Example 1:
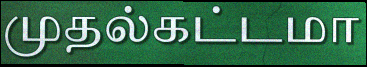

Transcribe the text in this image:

முதல்கட்டமா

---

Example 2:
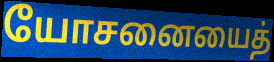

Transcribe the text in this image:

யோசனையைத்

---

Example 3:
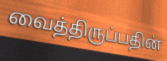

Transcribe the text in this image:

வைத்திருப்பதின்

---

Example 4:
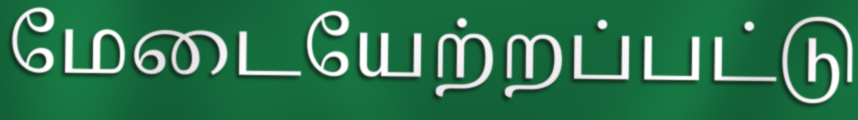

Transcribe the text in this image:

மேடையேற்றப்பட்டு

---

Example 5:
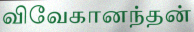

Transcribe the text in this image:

விவேகானந்தன்